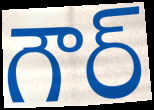
గౌర్